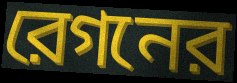
রেগনের